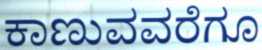
ಕಾಣುವವರೆಗೂ